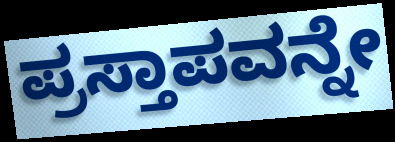
ಪ್ರಸ್ತಾಪವನ್ನೇ